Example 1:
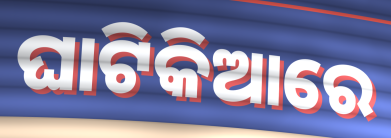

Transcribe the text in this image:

ଘାଟିକିଆରେ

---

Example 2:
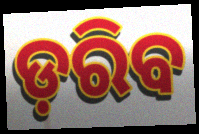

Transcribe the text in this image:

ଡ଼ରିବ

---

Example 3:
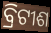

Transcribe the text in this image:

ବ୍ରିଟୀଶ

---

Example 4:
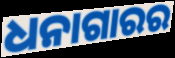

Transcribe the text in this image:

ଧନାଗାରର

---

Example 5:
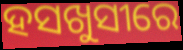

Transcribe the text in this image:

ହସଖୁସୀରେ